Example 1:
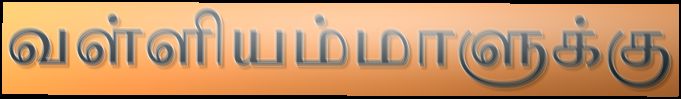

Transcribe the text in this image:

வள்ளியம்மாளுக்கு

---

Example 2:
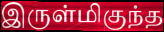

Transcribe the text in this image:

இருள்மிகுந்த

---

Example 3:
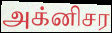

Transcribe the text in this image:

அக்னிசர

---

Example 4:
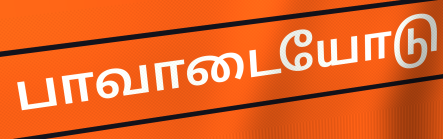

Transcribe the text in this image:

பாவாடையோடு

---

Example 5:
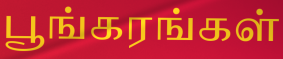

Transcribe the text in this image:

பூங்கரங்கள்